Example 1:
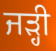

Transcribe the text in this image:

ਜੜ੍ਹੀ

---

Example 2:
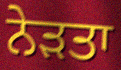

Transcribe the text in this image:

ਨੇੜਤਾ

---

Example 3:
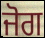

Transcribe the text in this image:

ਜੋਗ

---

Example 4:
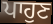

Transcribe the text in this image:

ਪਾਹੁਣ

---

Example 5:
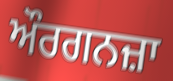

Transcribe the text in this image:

ਔਰਗਨਜ਼ਾ